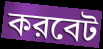
করবেট